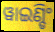
ୱାଇଣ୍ଡିଂ